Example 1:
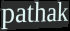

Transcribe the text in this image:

pathak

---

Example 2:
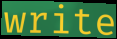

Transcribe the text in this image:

write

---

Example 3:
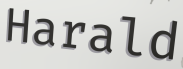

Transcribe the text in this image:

Harald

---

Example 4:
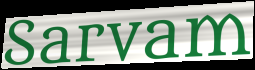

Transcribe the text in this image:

Sarvam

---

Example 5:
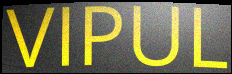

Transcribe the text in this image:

VIPUL